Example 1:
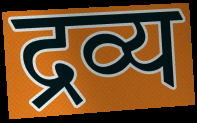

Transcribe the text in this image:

द्रव्य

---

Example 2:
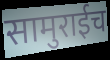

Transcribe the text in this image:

सामुराईच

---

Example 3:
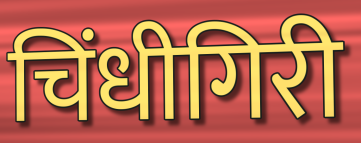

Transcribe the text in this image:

चिंधीगिरी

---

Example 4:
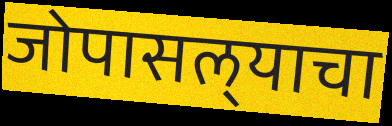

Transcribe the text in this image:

जोपासल्याचा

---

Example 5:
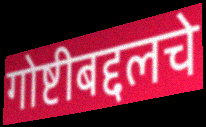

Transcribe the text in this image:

गोष्टीबद्दलचे